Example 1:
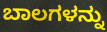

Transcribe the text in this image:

ಬಾಲಗಳನ್ನು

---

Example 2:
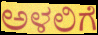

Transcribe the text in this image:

ಅಳಲಿಗೆ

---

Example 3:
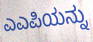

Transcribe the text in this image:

ಎಎಪಿಯನ್ನು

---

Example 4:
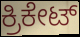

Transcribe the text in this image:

ಕ್ರಿಕೇಟ್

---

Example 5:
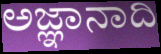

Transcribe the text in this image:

ಅಜ್ಞಾನಾದಿ